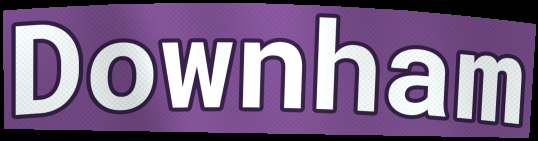
Downham